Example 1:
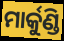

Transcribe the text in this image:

ମାର୍କୁଣ୍ଡି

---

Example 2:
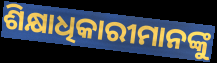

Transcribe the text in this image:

ଶିକ୍ଷାଧିକାରୀମାନଙ୍କୁ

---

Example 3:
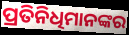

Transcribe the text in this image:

ପ୍ରତିନିଧିମାନଙ୍କର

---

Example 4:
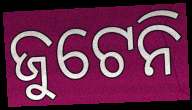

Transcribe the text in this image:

ଜୁଟେନି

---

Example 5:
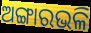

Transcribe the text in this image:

ଅଙ୍ଗାରଭଳି